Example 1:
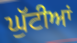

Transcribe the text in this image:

ਘੁੱਟੀਆਂ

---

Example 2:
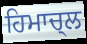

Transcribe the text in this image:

ਹਿਮਾਚ੍ਲ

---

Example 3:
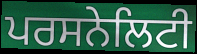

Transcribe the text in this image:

ਪਰਸਨੇਲਿਟੀ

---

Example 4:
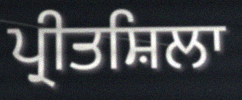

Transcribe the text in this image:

ਪ੍ਰੀਤਸ਼ਿਲਾ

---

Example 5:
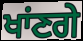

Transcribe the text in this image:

ਖਾਂਣਗੇ